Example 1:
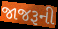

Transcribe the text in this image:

જાજરૂની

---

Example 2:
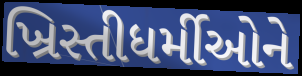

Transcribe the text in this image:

ખ્રિસ્તીધર્મીઓને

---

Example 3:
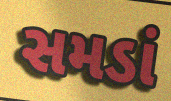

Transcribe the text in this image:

સમડાં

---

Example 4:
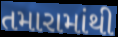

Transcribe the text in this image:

તમારામાંથી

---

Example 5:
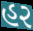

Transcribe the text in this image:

હર